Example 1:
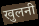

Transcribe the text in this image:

खुलनी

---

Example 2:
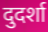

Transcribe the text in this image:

दुदर्शा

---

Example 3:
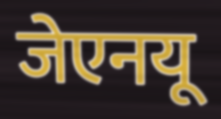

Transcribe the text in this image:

जेएनयू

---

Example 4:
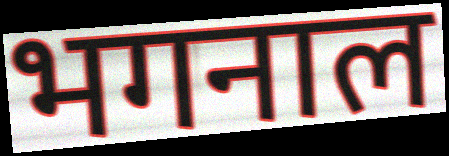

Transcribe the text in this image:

भगनाल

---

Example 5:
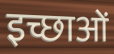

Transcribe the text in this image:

इच्छाओं